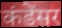
कंडेंसर